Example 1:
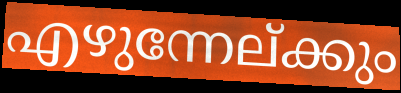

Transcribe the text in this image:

എഴുന്നേല്ക്കും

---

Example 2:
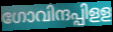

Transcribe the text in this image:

ഗോവിന്ദപ്പിളള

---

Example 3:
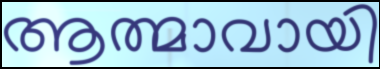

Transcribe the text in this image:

ആത്മാവായി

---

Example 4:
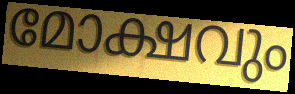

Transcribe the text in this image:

മോക്ഷവും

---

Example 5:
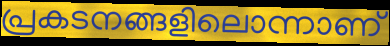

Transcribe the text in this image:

പ്രകടനങ്ങളിലൊന്നാണ്